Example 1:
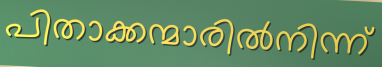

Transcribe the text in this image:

പിതാക്കന്മാരിൽനിന്ന്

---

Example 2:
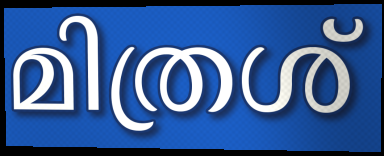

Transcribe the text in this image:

മിത്രശ്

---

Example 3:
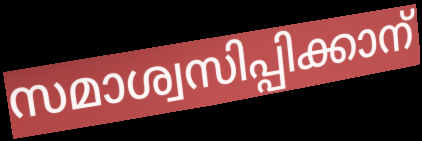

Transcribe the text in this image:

സമാശ്വസിപ്പിക്കാന്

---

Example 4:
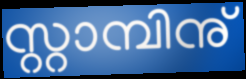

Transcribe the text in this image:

സ്റ്റാമ്പിനു്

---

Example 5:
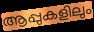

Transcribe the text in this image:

ആപ്പുകളിലും